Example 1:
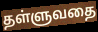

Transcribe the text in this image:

தள்ளுவதை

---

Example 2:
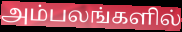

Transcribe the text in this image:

அம்பலங்களில்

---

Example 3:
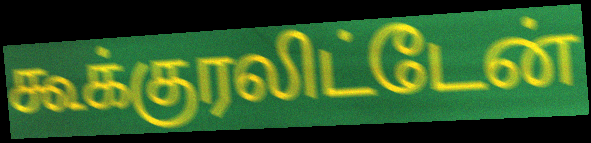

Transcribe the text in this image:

கூக்குரலிட்டேன்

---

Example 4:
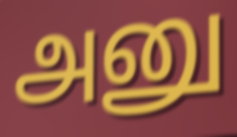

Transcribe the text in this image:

அனு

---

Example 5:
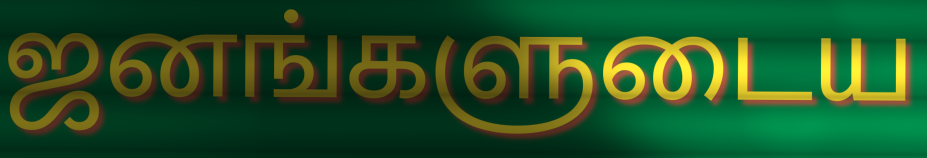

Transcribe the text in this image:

ஜனங்களுடைய